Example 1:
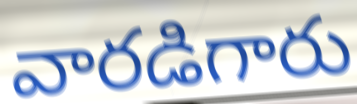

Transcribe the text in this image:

వారడిగారు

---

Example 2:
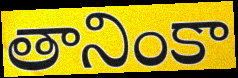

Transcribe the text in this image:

తానింకా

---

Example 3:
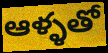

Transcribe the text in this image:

ఆళ్ళతో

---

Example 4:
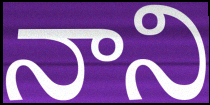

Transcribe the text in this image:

నాని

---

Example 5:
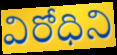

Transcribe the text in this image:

విరోధిని